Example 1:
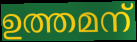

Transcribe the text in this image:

ഉത്തമന്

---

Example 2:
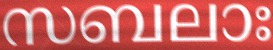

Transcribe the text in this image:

സബലാഃ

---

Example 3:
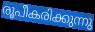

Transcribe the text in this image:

രൂപീകരിക്കുന്നു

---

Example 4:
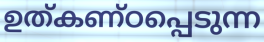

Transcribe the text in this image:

ഉത്കണ്ഠപ്പെടുന്ന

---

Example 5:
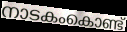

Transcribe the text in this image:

നാടകംകൊണ്ട്